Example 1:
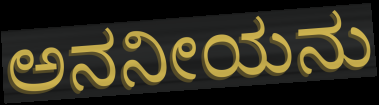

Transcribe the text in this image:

ಅನನೀಯನು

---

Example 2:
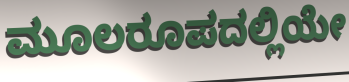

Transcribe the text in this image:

ಮೂಲರೂಪದಲ್ಲಿಯೇ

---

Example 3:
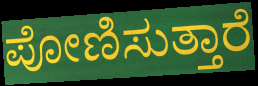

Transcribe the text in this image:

ಪೋಣಿಸುತ್ತಾರೆ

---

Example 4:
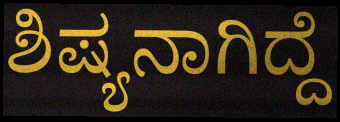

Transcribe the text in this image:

ಶಿಷ್ಯನಾಗಿದ್ದೆ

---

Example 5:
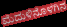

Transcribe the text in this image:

ಮೆದುಳಿನೊಳಗಿನ